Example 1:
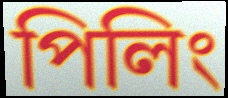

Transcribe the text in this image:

পিলিং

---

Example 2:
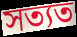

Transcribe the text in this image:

সত্যত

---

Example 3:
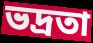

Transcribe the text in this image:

ভদ্ৰতা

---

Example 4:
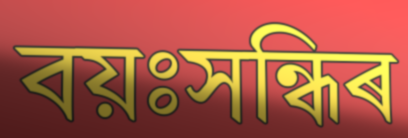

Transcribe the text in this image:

বয়ঃসন্ধিৰ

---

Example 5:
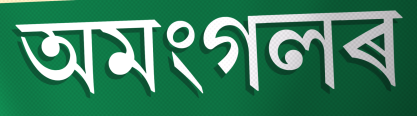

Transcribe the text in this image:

অমংগলৰ